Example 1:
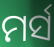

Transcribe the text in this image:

ମର୍ସ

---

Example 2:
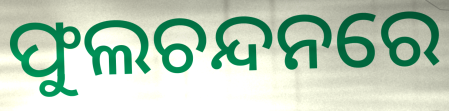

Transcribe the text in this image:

ଫୁଲଚନ୍ଦନରେ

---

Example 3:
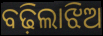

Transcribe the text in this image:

ବଢ଼ିଲାଝିଅ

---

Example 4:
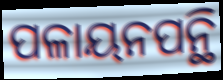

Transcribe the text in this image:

ପଳାୟନପନ୍ଥି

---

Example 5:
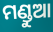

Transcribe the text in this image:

ମଣ୍ଡୁଆ